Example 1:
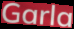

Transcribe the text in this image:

Garla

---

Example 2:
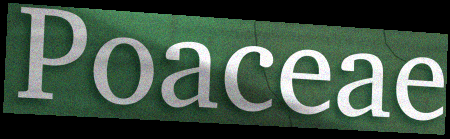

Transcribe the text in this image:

Poaceae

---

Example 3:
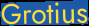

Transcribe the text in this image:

Grotius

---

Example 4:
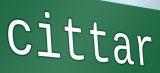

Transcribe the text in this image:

cittar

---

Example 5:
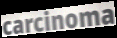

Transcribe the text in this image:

carcinoma